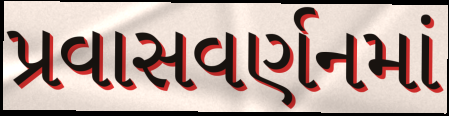
પ્રવાસવર્ણનમાં